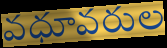
వధూవరుల